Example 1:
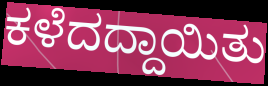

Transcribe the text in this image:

ಕಳೆದದ್ದಾಯಿತು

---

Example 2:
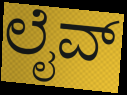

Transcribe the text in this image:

ಲೈವ್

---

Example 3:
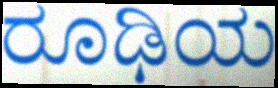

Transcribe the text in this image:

ರೂಢಿಯ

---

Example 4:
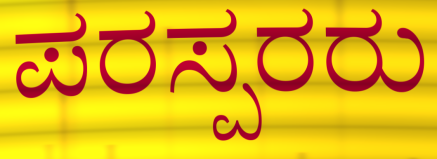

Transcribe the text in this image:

ಪರಸ್ಪರರು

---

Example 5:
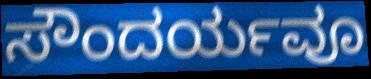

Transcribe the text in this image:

ಸೌಂದರ್ಯವೂ